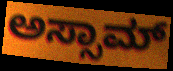
ಅಸ್ಸಾಮ್